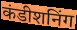
कंडीशनिंग